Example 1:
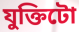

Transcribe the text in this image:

যুক্তিটো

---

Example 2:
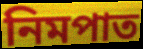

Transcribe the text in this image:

নিমপাত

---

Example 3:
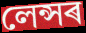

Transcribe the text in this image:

লেন্সৰ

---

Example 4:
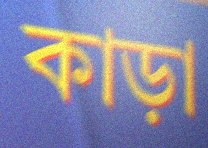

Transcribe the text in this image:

কাড়া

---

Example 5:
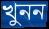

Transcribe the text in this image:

খুনন